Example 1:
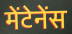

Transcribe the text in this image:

मेंटेनेंस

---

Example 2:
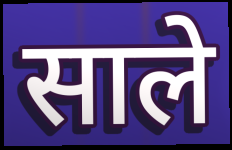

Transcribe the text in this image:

साले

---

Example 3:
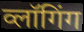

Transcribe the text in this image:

व्लॉगिंग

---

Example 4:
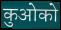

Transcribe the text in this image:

कुओको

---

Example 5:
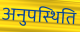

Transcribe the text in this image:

अनुपस्थिति